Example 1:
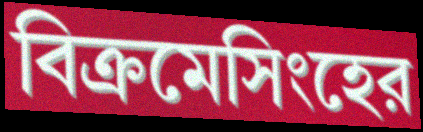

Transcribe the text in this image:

বিক্রমেসিংহের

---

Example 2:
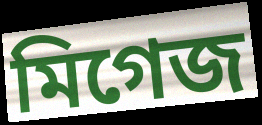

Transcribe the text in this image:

মিগেজ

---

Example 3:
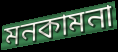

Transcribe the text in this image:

মনকামনা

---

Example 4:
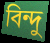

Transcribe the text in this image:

বিন্দু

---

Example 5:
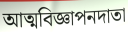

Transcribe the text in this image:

আত্মবিজ্ঞাপনদাতা